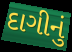
દાગીનું